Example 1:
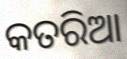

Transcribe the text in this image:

କତରିଆ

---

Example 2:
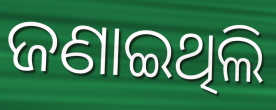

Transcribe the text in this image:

ଜଣାଇଥିଲି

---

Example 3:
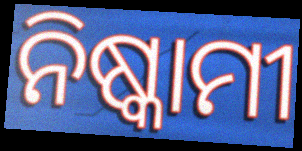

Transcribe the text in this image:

ନିଷ୍କାମୀ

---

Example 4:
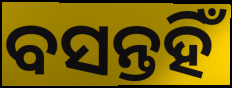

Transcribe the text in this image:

ବସନ୍ତହିଁ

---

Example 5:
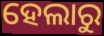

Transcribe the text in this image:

ହେଲାରୁ